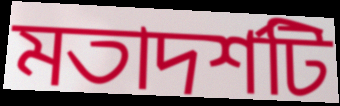
মতাদর্শটি